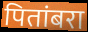
पितांबरा